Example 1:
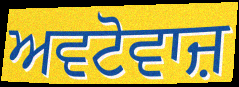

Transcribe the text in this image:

ਅਵਟੋਵਾਜ਼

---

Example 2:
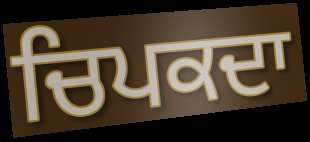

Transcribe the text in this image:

ਚਿਪਕਦਾ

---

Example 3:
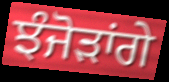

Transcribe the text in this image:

ਝੰਜੋੜਾਂਗੇ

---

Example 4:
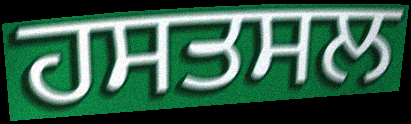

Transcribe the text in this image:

ਹਸਤਸਲ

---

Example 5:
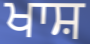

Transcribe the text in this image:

ਖਾਸ਼